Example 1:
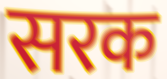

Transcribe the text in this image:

सरक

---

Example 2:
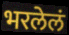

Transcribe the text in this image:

भरलेलं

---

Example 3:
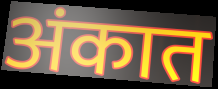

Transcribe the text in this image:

अंकात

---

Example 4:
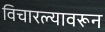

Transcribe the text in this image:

विचारल्यावरून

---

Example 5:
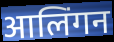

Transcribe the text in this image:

आलिंगन